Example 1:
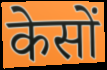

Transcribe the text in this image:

केसों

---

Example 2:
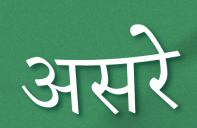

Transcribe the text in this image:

असरे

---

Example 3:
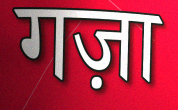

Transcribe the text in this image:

गज़ा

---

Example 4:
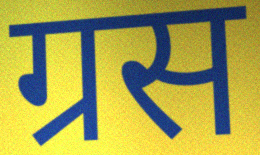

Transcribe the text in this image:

ग्रस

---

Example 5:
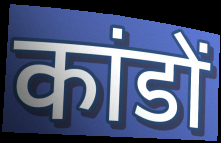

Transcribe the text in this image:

कांडों